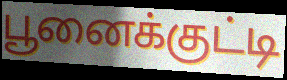
பூனைக்குட்டி